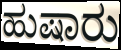
ಹುಷಾರು